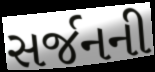
સર્જનની